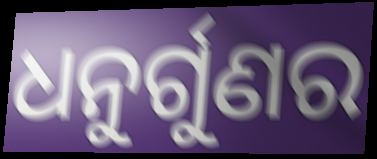
ଧନୁର୍ଗୁଣର